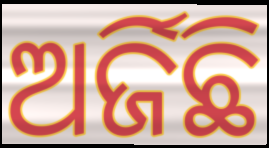
ଅର୍ଜିଛି